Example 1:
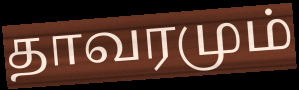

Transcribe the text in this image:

தாவரமும்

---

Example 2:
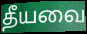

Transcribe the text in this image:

தீயவை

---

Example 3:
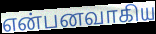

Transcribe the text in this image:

என்பனவாகிய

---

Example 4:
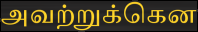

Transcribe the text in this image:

அவற்றுக்கென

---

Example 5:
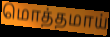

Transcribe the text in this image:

மொத்தமாய்